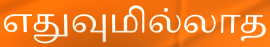
எதுவுமில்லாத